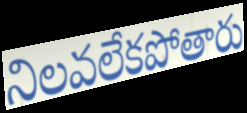
నిలవలేకపోతారు